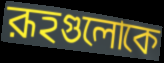
রূহগুলোকে